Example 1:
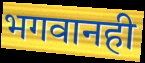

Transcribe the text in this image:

भगवानही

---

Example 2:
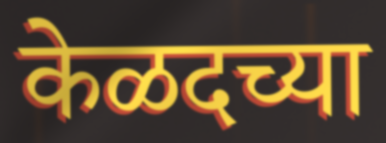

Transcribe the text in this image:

केळदच्या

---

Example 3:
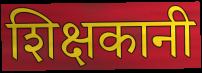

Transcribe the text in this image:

शिक्षकानी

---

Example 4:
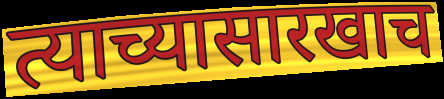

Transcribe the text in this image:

त्याच्यासारखाच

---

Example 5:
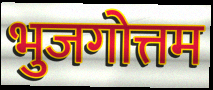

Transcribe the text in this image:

भुजगोत्तम